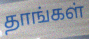
தாங்கள்